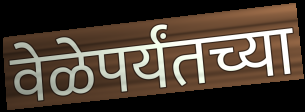
वेळेपर्यंतच्या